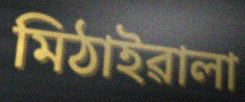
মিঠাইৱালা